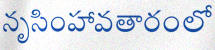
నృసింహావతారంలో